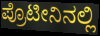
ಪ್ರೊಟೀನಿನಲ್ಲಿ